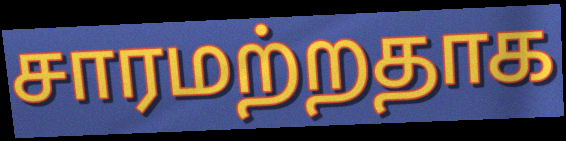
சாரமற்றதாக